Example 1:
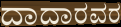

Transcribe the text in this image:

ದಾದಾರವರ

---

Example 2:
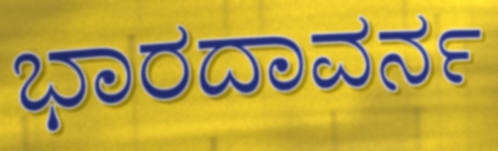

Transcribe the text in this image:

ಭಾರದಾವರ್ನ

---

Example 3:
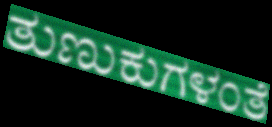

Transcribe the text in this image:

ತುಣುಕುಗಳಂತೆ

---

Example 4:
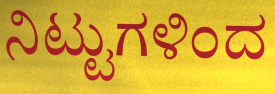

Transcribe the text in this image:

ನಿಟ್ಟುಗಳಿಂದ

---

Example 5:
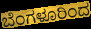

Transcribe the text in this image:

ಬೆಂಗಳೂರಿಂದ